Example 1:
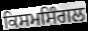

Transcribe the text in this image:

ਕਿਸਮਸਿੰਗਲ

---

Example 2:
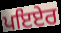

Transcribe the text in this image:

ਪਇਏਰ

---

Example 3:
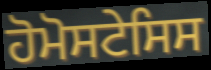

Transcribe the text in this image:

ਹੋਮੋਸਟੇਸਿਸ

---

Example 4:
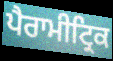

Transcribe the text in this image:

ਪੈਰਾਮੀਟ੍ਰਿਕ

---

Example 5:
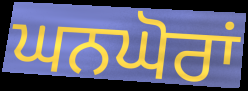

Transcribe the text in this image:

ਘਨਘੋਰਾਂ